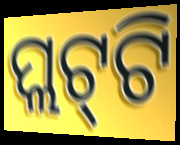
ପ୍ଲଟ୍‌ଟି